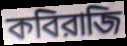
কবিরাজি